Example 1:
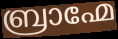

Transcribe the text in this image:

ബ്രാഹ്മേ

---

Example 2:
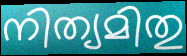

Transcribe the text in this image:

നിത്യമിതു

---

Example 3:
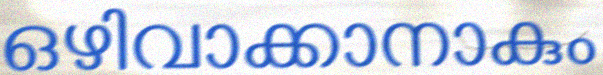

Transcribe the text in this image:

ഒഴിവാക്കാനാകും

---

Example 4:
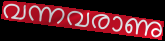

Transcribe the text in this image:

വന്നവരാണു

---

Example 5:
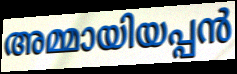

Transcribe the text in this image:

അമ്മായിയപ്പൻ